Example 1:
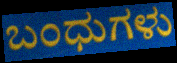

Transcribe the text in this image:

ಬಂಧುಗಳು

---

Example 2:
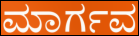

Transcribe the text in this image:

ಮಾರ್ಗವ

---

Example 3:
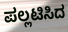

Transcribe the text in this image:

ಪಲ್ಲಟಿಸಿದ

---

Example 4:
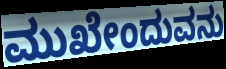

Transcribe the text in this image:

ಮುಖೇಂದುವನು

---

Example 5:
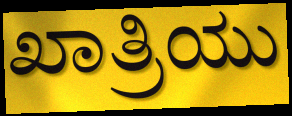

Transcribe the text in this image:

ಖಾತ್ರಿಯು